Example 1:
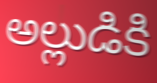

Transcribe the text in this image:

అల్లుడికి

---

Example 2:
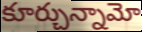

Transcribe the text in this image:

కూర్చున్నామో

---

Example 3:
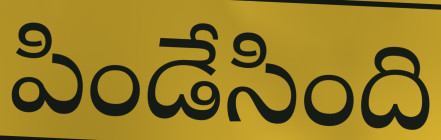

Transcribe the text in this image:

పిండేసింది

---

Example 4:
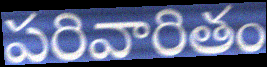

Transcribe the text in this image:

పరివారితం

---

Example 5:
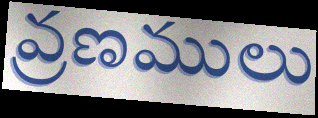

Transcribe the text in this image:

వ్రణములు